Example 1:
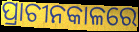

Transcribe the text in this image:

ପ୍ରାଚୀନକାଳରେ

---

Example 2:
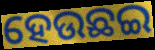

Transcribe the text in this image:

ହେଉଛଇ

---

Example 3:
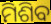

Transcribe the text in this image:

ମିଶିବ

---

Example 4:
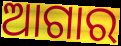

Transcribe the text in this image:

ଆଗାର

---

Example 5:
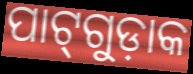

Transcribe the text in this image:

ପାଟ୍‌ଗୁଡ଼ାକ